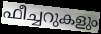
ഫീച്ചറുകളും